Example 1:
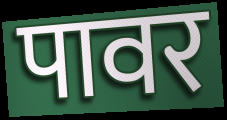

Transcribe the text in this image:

पावर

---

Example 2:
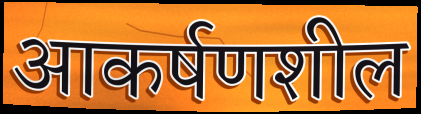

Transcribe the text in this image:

आकर्षणशील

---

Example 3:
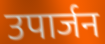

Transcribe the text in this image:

उपार्जन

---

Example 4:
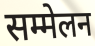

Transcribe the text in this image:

सम्मेलन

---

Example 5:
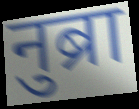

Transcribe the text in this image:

नुब्रा